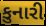
કુનારી